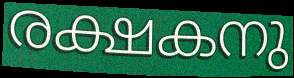
രക്ഷകനു